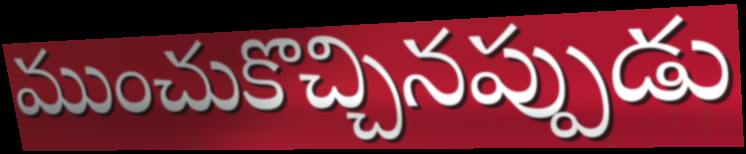
ముంచుకొచ్చినప్పుడు